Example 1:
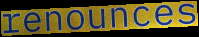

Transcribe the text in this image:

renounces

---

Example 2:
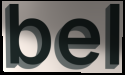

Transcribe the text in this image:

bel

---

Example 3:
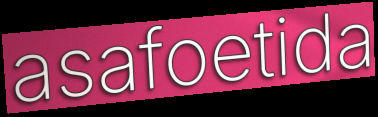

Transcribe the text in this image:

asafoetida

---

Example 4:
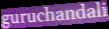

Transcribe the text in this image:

guruchandali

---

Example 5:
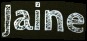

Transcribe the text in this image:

Jaine